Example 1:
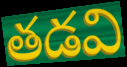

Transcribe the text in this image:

తడవి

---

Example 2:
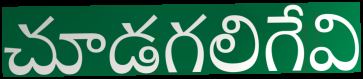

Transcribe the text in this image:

చూడగలిగేవి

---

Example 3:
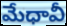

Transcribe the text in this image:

మేధావీ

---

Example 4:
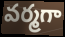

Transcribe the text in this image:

వర్మగా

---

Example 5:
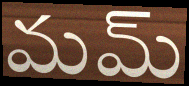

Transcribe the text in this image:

మమ్